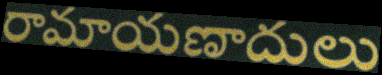
రామాయణాదులు